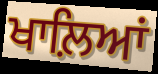
ਖਾਲ਼ਿਆਂ